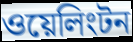
ওয়েলিংটন